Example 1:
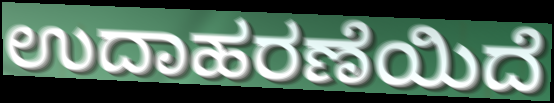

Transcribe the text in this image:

ಉದಾಹರಣೆಯಿದೆ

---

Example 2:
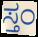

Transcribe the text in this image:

ಸ್ತಂ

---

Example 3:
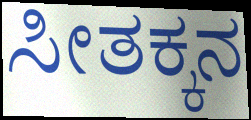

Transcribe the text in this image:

ಸೀತಕ್ಕನ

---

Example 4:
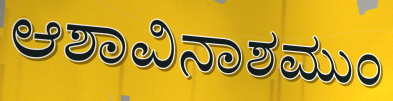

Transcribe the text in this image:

ಆಶಾವಿನಾಶಮುಂ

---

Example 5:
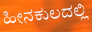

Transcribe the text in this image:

ಹೀನಕುಲದಲ್ಲಿ